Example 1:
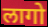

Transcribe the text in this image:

लागो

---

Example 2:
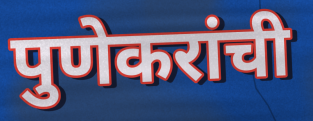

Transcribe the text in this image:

पुणेकरांची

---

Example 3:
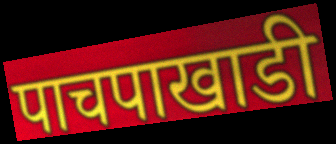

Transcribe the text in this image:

पाचपाखाडी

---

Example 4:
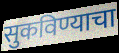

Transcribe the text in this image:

सुकविण्याचा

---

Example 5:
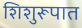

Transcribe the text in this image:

शिशुरूपात